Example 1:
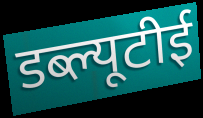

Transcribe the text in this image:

डब्ल्यूटीई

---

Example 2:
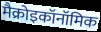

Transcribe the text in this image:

मैक्रोइकॉनॉमिक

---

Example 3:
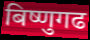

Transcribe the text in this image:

बिष्णुगढ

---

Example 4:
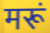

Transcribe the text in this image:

मरूं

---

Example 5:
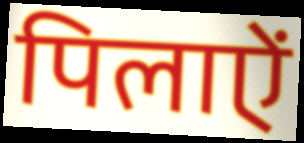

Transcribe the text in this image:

पिलाऐं